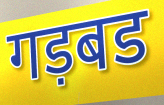
गड़बड